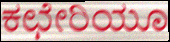
ಕಛೇರಿಯೂ